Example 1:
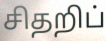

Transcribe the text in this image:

சிதறிப்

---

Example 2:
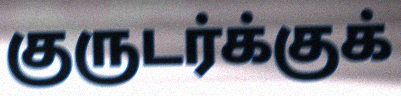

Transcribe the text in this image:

குருடர்க்குக்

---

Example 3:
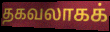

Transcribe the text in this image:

தகவலாகக்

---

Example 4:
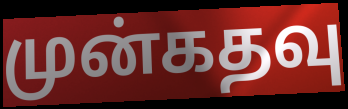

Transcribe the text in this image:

முன்கதவு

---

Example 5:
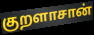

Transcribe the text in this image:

குறளாசான்